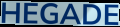
HEGADE